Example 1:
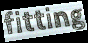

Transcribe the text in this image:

fitting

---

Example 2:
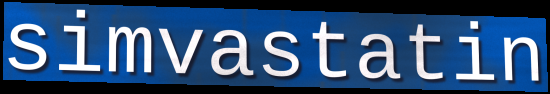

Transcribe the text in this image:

simvastatin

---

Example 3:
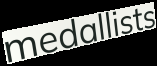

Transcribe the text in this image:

medallists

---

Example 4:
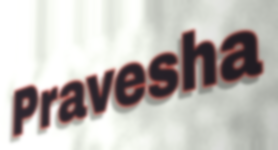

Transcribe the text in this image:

Pravesha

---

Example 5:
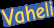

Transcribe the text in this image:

Vaheli